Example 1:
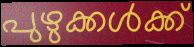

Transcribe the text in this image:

പുഴുക്കൾക്ക്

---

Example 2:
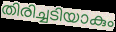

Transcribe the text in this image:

തിരിച്ചടിയാകും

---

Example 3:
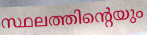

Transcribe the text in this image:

സ്ഥലത്തിന്റെയും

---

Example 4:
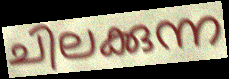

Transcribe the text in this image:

ചിലക്കുന്ന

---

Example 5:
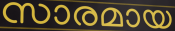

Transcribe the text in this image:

സാരമായ